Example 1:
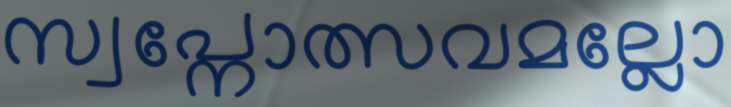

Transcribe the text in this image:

സ്വപ്നോത്സവമല്ലോ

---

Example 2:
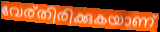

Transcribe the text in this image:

വേര്തിരിക്കുകയാണ്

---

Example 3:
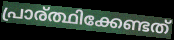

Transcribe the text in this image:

പ്രാര്ത്ഥിക്കേണ്ടത്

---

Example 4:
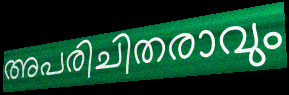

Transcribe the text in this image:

അപരിചിതരാവും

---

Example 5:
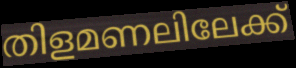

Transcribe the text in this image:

തിളമണലിലേക്ക്